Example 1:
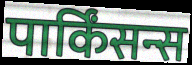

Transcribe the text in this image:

पार्किंसन्स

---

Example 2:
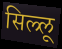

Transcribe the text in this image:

सिल्लू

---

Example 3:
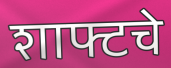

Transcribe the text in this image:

शाफ्टचे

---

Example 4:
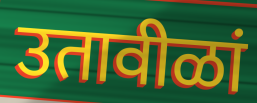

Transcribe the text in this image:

उतावीळां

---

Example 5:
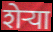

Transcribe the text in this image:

शेऱ्या